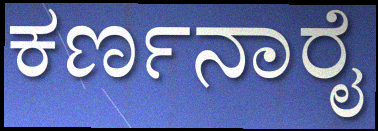
ಕರ್ಣನಾರೈ